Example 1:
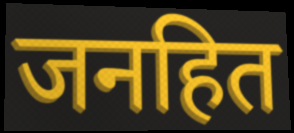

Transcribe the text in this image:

जनहित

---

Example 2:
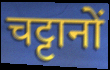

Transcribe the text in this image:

चट्टानों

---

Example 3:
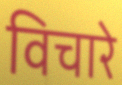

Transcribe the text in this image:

विचारे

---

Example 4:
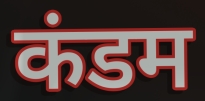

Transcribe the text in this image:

कंडम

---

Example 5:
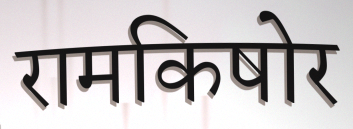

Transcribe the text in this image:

रामकिषोर